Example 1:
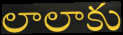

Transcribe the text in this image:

లాలాకు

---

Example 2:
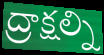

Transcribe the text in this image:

ద్రాక్షల్ని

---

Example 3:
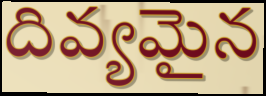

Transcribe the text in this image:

దివ్యమైన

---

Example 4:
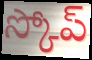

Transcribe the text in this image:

స్కోప్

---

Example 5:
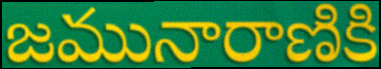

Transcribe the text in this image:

జమునారాణికి